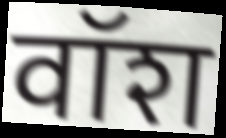
वॉश